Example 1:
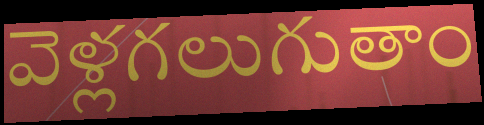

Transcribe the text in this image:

వెళ్లగలుగుతాం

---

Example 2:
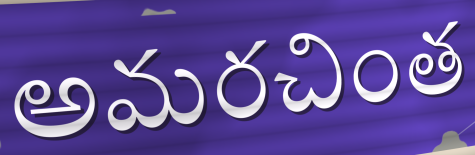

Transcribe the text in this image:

అమరచింత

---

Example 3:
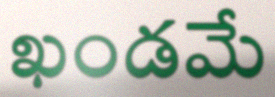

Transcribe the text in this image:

ఖండమే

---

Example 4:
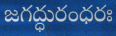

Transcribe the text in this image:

జగద్ధురంధరః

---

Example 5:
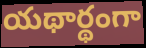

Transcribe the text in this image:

యథార్థంగా